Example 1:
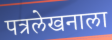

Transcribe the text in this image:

पत्रलेखनाला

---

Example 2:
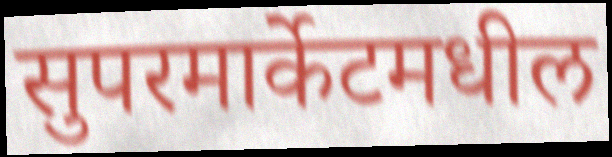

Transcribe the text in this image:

सुपरमार्केटमधील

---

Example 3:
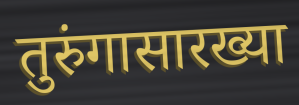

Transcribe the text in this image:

तुरुंगासारख्या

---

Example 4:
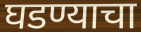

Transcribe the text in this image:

घडण्याचा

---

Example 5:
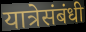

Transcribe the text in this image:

यात्रेसंबंधी